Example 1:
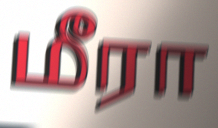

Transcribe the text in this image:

மீரா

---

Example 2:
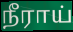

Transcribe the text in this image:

நீராய்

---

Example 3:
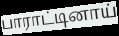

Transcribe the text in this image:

பாராட்டினாய்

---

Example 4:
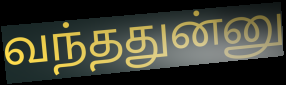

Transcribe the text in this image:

வந்ததுன்னு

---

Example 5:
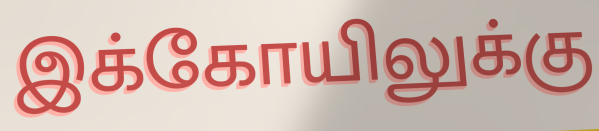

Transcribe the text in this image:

இக்கோயிலுக்கு